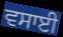
ਵਸਾਈ